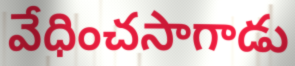
వేధించసాగాడు